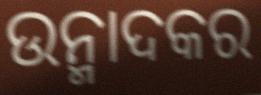
ଉନ୍ମାଦକର